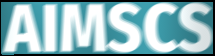
AIMSCS